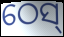
ଠେସ୍